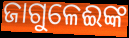
ଜାଗୁଳେଈଙ୍କ